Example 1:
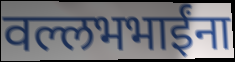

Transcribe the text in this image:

वल्लभभाईंना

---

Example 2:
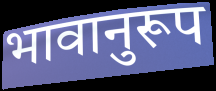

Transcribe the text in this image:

भावानुरूप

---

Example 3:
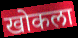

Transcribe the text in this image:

खोकला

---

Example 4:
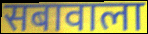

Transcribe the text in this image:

सबावाला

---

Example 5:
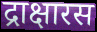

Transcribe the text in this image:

द्राक्षारस